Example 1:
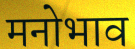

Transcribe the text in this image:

मनोभाव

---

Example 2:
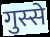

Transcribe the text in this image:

गुस्‍से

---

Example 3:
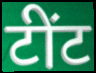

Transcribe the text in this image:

टींट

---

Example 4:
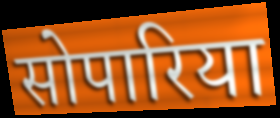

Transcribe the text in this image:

सोपारिया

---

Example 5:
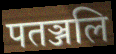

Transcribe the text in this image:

पतञ्जलि